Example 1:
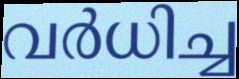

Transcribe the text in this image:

വർധിച്ച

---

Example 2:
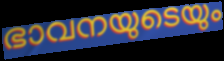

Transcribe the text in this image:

ഭാവനയുടെയും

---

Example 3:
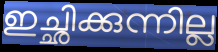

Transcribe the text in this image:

ഇച്ഛിക്കുന്നില്ല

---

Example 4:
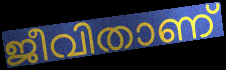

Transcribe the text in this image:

ജീവിതാണ്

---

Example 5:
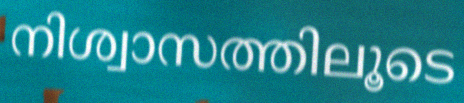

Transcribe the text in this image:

നിശ്വാസത്തിലൂടെ